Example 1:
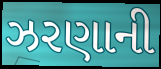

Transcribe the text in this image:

ઝરણાની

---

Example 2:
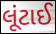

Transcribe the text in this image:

લૂંટાઈ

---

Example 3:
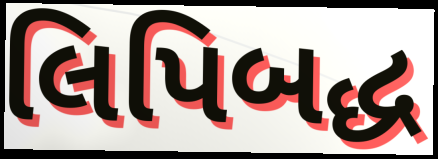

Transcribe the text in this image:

લિપિબદ્ધ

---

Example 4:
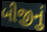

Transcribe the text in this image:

બીજીનું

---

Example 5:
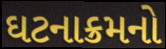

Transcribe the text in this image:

ઘટનાક્રમનો